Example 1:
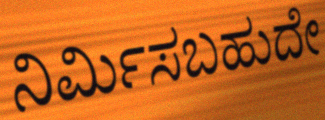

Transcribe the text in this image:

ನಿರ್ಮಿಸಬಹುದೇ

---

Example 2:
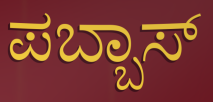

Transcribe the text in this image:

ಪಬ್ಬಾಸ್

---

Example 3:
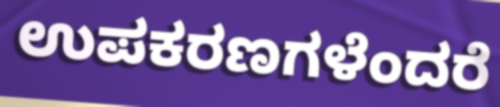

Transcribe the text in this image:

ಉಪಕರಣಗಳೆಂದರೆ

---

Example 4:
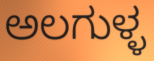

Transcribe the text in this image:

ಅಲಗುಳ್ಳ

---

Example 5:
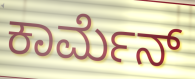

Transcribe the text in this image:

ಕಾರ್ಮೆನ್